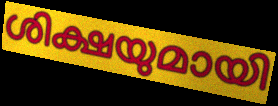
ശിക്ഷയുമായി